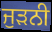
ਜੁੜਨੀ